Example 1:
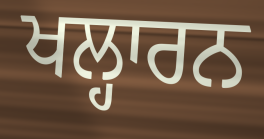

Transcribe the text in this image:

ਖਲ੍ਹਾਰਨ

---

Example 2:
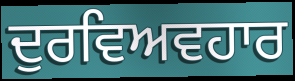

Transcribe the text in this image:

ਦੁਰਵਿਅਵਹਾਰ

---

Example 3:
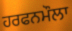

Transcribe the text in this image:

ਹਰਫਨਮੌਲਾ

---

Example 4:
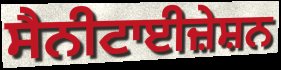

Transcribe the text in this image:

ਸੈਨੀਟਾਈਜ਼ੇਸ਼ਨ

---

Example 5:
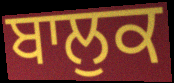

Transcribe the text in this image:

ਬਾਲੁਕ